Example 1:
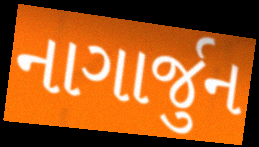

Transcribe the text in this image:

નાગાર્જુન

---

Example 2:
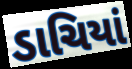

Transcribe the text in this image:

ડાચિયાં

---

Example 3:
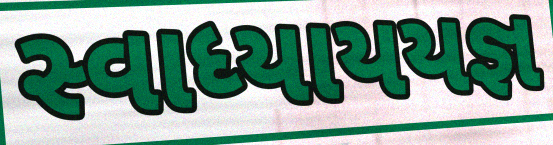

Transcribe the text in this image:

સ્વાધ્યાયયજ્ઞ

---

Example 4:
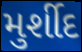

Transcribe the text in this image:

મુર્શીદ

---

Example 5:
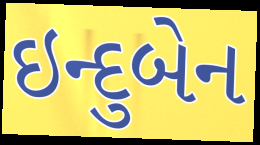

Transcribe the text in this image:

ઇન્દુબેન